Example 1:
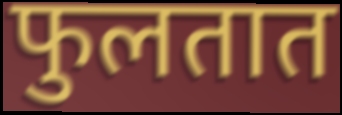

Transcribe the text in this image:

फुलतात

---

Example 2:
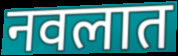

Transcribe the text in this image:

नवलात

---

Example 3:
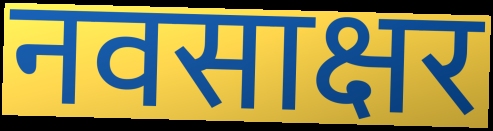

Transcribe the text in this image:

नवसाक्षर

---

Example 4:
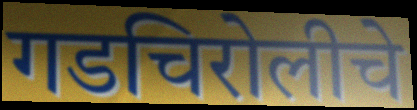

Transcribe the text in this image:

गडचिरोलीचे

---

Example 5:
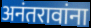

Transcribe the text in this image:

अनंतरावांना